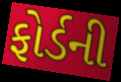
ફોર્ડની